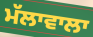
ਮੱਲਾਵਾਲਾ